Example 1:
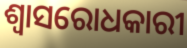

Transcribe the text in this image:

ଶ୍ୱାସରୋଧକାରୀ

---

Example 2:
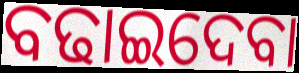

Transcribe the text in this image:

ବଢାଇଦେବା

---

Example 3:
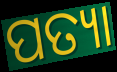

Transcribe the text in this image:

ପତ୍ୟା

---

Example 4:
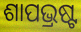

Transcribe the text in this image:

ଶାପଭ୍ରଷ୍ଟ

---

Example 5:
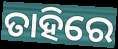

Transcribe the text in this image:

ତାହିରେ